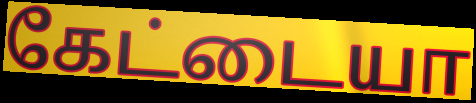
கேட்டையா